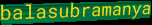
balasubramanya